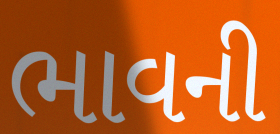
ભાવની